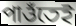
পাওঁতেই